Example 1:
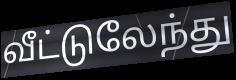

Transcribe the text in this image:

வீட்டுலேந்து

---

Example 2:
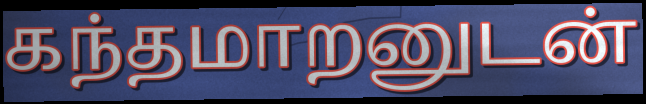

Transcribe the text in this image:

கந்தமாறனுடன்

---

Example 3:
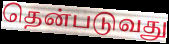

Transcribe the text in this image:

தென்படுவது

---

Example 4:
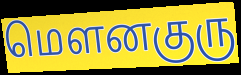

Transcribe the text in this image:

மௌனகுரு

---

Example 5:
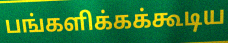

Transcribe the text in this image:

பங்களிக்கக்கூடிய